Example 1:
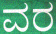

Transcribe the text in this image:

ವರ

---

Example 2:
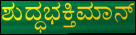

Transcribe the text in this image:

ಶುದ್ಧಭಕ್ತಿಮಾನ್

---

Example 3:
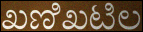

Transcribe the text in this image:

ಖಣಿಖಟಿಲ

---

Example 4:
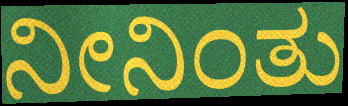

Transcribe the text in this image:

ನೀನಿಂತು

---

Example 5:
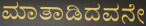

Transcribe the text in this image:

ಮಾತಾಡಿದವನೇ